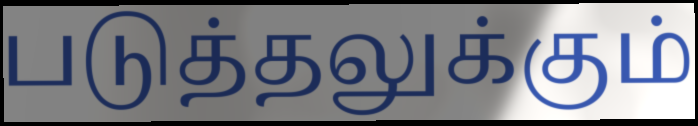
படுத்தலுக்கும்